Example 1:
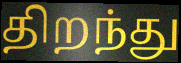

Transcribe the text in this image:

திறந்து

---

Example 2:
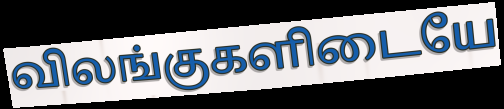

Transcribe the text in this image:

விலங்குகளிடையே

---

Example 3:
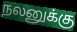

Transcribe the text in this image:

நலனுக்கு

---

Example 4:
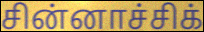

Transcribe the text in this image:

சின்னாச்சிக்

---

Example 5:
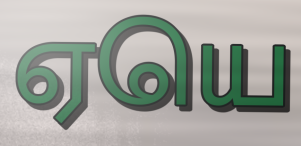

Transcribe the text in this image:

ஏயெ